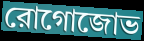
রোগোজোভ